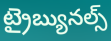
ట్రైబ్యునల్స్